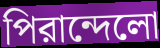
পিরান্দেলো